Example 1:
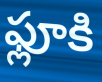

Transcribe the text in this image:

ఫ్లూకి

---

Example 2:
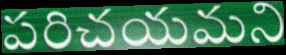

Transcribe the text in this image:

పరిచయమని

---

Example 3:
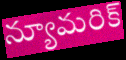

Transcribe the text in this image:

న్యూమరిక్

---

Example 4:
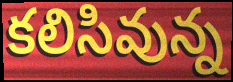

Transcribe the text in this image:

కలిసివున్న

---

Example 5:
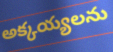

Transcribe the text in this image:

అక్కయ్యలను